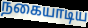
நகையாடிய